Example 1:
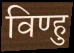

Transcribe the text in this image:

विण्हु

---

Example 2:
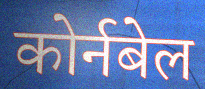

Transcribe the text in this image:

कोर्नबेल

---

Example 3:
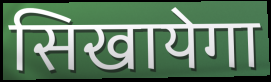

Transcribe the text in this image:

सिखायेगा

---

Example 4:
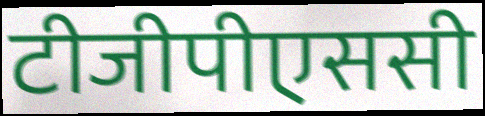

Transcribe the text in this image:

टीजीपीएससी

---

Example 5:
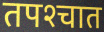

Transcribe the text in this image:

तपश्चात